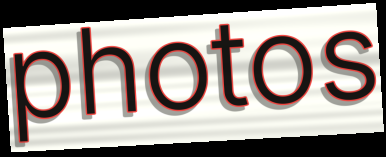
photos